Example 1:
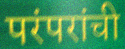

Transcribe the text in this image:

परंपरांची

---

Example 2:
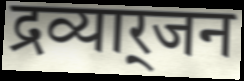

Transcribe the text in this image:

द्रव्यार्जन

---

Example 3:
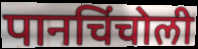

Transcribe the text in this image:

पानचिंचोली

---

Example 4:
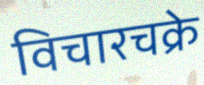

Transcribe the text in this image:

विचारचक्रे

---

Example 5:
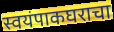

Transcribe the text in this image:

स्वयंपाकघराचा